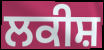
ਲਕੀਸ਼